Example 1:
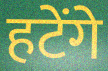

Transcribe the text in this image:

हटेंगे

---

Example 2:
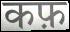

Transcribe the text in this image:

कफ़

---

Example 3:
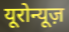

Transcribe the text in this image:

यूरोन्यूज़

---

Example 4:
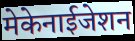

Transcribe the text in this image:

मेकेनाईजेशन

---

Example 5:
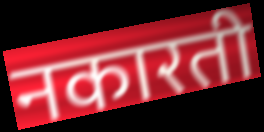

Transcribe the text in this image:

नकारती